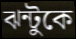
ঝন্টুকে